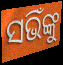
ସଭିଁଙ୍କୁ